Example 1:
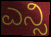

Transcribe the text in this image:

ಎನ್ಸಿ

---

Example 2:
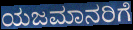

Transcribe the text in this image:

ಯಜಮಾನರಿಗೆ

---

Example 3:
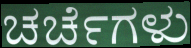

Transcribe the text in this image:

ಚರ್ಚೆಗಳು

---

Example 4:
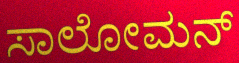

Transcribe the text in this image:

ಸಾಲೋಮನ್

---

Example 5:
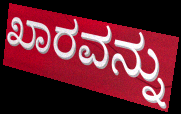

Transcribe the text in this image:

ಖಾರವನ್ನು